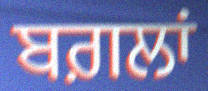
ਬਗ਼ਲਾਂ